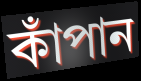
কাঁপান